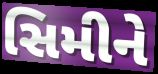
સિમીને